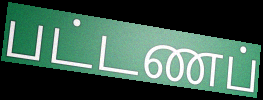
பட்டணப்